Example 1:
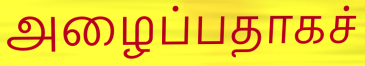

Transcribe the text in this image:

அழைப்பதாகச்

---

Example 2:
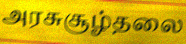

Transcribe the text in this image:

அரசுசூழ்தலை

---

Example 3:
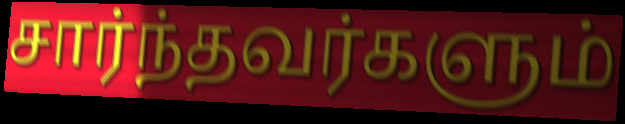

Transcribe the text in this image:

சார்ந்தவர்களும்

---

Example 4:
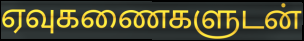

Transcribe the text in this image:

ஏவுகணைகளுடன்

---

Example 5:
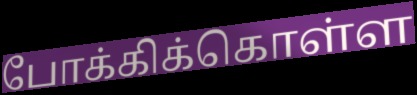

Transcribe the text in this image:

போக்கிக்கொள்ள